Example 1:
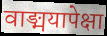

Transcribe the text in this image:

वाङ्मयापेक्षा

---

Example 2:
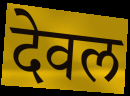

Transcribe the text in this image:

देवल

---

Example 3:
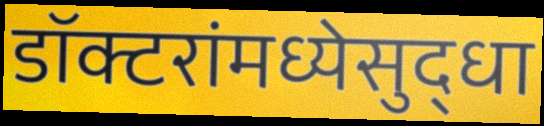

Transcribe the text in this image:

डॉक्टरांमध्येसुद्धा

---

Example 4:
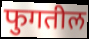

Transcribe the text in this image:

फुगतील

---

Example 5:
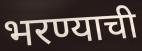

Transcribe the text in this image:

भरण्याची